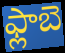
ఫ్లాబె